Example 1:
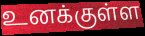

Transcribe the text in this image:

உனக்குள்ள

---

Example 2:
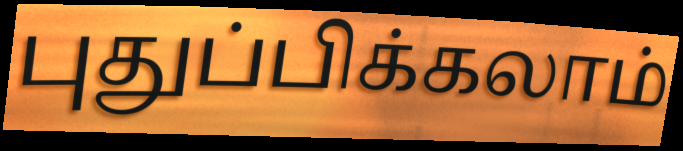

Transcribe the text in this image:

புதுப்பிக்கலாம்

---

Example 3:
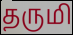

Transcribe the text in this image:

தருமி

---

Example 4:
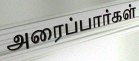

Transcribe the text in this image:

அரைப்பார்கள்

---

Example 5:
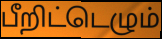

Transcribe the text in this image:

பீறிட்டெழும்